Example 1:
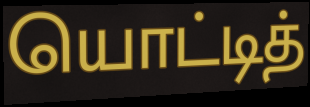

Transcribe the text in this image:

யொட்டித்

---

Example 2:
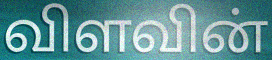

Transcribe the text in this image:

விளவின்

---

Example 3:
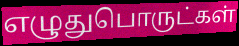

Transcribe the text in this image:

எழுதுபொருட்கள்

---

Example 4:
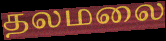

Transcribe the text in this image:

தலமலை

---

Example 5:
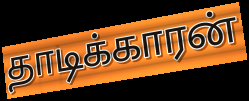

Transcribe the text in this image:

தாடிக்காரன்